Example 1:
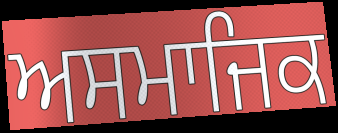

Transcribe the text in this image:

ਅਸਮਾਜਿਕ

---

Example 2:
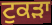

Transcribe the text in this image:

ਟੁਕੜਾ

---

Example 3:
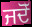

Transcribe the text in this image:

ਜਦੋੱ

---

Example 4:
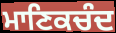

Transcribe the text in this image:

ਮਾਣਿਕਚੰਦ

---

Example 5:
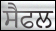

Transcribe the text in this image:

ਸੈਫਲ